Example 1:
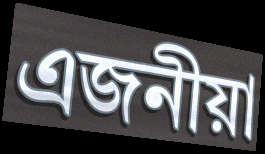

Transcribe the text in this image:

এজনীয়া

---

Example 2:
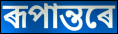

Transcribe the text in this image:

ৰূপান্তৰে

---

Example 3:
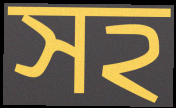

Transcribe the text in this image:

সহ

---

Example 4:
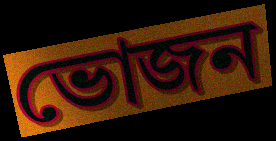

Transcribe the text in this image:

ভোজন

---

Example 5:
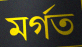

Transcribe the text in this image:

মৰ্গত